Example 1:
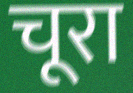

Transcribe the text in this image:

चूरा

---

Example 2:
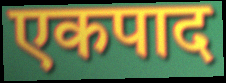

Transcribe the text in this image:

एकपाद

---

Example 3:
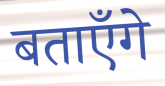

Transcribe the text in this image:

बताएँगे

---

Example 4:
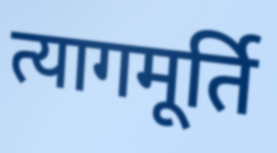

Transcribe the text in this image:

त्यागमूर्ति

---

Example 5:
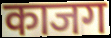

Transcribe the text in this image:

काजग